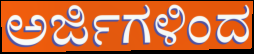
ಅರ್ಜಿಗಳಿಂದ